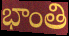
భాంతి